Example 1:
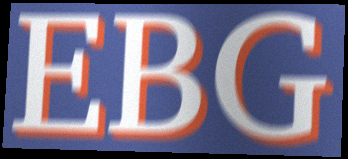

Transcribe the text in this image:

EBG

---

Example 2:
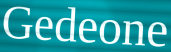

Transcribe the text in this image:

Gedeone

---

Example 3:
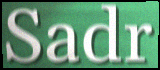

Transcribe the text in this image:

Sadr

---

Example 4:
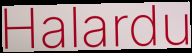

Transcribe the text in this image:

Halardu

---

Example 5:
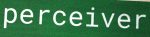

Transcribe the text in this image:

perceiver